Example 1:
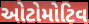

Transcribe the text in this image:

ઓટોમોટિવ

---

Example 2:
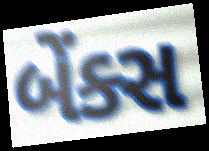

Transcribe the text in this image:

બેંક્સ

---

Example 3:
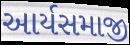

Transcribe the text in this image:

આર્યસમાજી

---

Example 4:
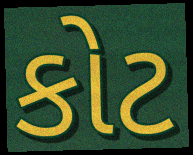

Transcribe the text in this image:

કોટ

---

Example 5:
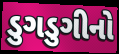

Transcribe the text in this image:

ડુગડુગીનો